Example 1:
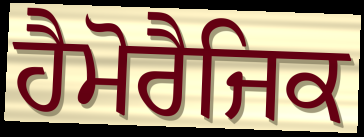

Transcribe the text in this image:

ਹੈਮੋਰੈਜਿਕ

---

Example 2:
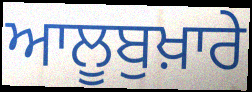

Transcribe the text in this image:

ਆਲੂਬੁਖ਼ਾਰੇ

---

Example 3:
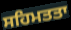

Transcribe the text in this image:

ਸਹਿਮਤਤਾ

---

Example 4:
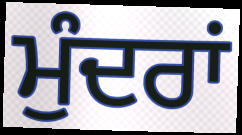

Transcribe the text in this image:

ਮੁੰਦਰਾਂ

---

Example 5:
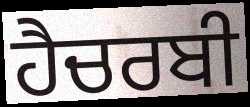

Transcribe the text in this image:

ਹੈਚਰਬੀ